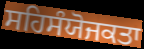
ਸਹਿਸੰਯੋਜਕਤਾ